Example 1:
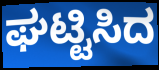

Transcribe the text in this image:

ಘಟ್ಟಿಸಿದ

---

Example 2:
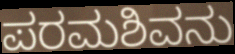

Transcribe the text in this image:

ಪರಮಶಿವನು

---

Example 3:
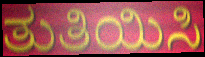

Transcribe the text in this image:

ತುತಿಯಿಸಿ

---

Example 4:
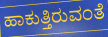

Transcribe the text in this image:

ಹಾಕುತ್ತಿರುವಂತೆ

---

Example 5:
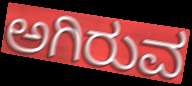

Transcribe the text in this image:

ಅಗಿರುವ